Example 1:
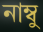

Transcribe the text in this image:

নাম্বু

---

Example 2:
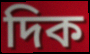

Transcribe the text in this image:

দিক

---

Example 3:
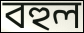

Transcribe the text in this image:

বহুল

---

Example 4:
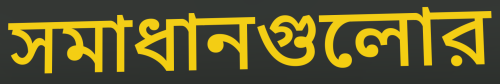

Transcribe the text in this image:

সমাধানগুলোর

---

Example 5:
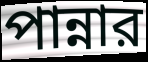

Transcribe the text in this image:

পান্নার